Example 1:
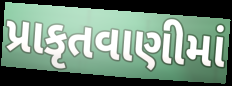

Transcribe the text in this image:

પ્રાકૃતવાણીમાં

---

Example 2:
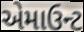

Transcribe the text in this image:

એમાઉન્ટ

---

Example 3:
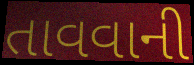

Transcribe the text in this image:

તાવવાની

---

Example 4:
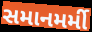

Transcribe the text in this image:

સમાનમર્મી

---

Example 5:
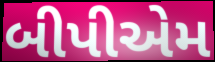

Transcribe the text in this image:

બીપીએમ